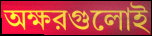
অক্ষরগুলোই